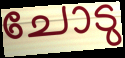
ചോടു